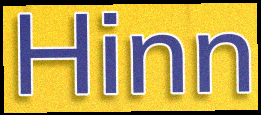
Hinn